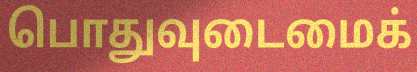
பொதுவுடைமைக்